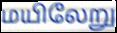
மயிலேறு